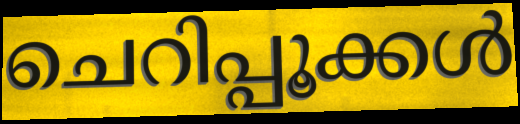
ചെറിപ്പൂക്കൾ